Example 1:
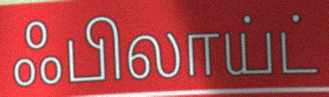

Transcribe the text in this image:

ஃபிலாய்ட்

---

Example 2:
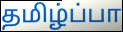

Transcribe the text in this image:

தமிழ்ப்பா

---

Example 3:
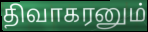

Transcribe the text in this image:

திவாகரனும்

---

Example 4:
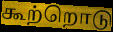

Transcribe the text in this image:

கூற்றொடு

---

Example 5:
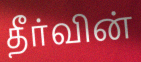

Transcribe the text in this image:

தீர்வின்